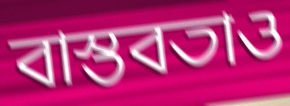
বাস্তবতাও